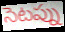
సెటప్ను